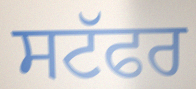
ਸਟੱਫਰ